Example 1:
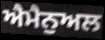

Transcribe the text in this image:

ਐਮੈਨੁਅਲ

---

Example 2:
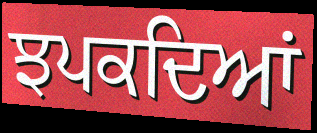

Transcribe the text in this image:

ਝਪਕਦਿਆਂ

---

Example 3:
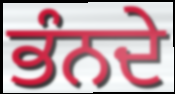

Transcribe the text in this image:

ਭੰਨਦੇ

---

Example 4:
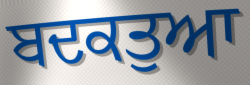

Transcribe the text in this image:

ਬਦਕਤੁਆ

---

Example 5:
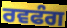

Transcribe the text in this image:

ਰਵਫੰਗ